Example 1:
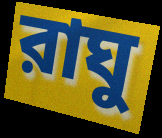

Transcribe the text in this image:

রাঘু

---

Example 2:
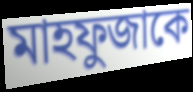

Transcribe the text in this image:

মাহফুজাকে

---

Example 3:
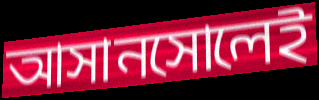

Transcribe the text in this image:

আসানসোলেই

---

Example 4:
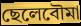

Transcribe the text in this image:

ছেলেবৌমা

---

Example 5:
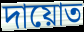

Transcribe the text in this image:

দায়োত